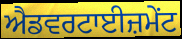
ਐਡਵਰਟਾਈਜ਼ਮੇਂਟ